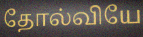
தோல்வியே